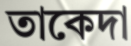
তাকেদা